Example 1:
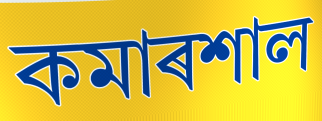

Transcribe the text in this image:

কমাৰশাল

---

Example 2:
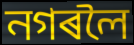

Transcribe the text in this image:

নগৰলৈ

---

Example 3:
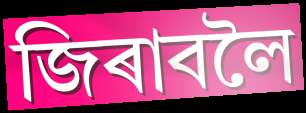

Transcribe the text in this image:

জিৰাবলৈ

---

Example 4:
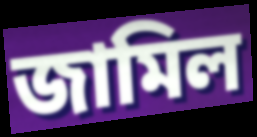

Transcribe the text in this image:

জামিল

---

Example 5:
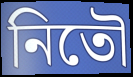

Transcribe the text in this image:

নিতৌ